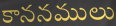
కాననములు